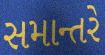
સમાન્તરે